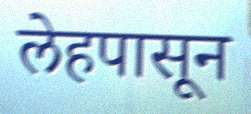
लेहपासून